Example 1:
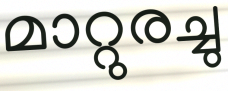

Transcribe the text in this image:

മാറ്റുരച്ചു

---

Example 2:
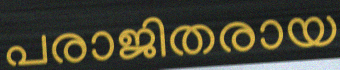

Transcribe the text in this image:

പരാജിതരായ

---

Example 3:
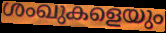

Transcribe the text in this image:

ശംഖുകളെയും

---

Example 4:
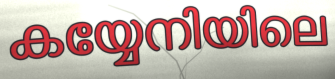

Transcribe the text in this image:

കയ്യേനിയിലെ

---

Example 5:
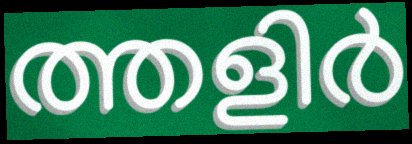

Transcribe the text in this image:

ത്തളിർ